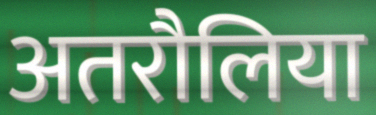
अतरौलिया